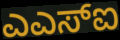
ಎಎಸ್ಐ